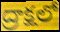
ద్రాక్షలో